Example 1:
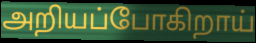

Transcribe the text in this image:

அறியப்போகிறாய்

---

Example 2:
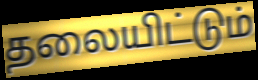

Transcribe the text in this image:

தலையிட்டும்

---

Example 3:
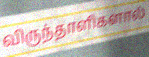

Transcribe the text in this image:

விருந்தாளிகளால்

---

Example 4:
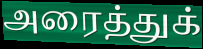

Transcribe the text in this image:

அரைத்துக்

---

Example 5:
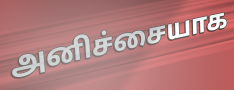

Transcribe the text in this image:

அனிச்சையாக